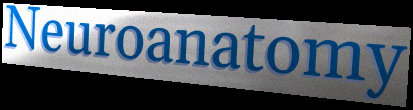
Neuroanatomy